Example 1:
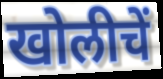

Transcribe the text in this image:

खोलीचें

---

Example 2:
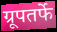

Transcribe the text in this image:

ग्रूपतर्फे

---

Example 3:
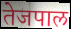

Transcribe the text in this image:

तेजपाल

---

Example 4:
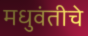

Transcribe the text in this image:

मधुवंतीचे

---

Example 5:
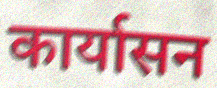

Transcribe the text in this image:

कार्यासन